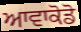
ਆਵਾਕੋਡੋ